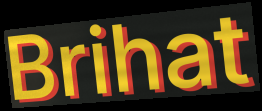
Brihat